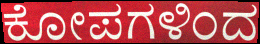
ಕೋಪಗಳಿಂದ